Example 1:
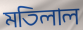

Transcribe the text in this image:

মতিলাল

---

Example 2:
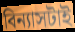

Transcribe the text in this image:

বিন্যাসটাই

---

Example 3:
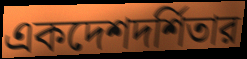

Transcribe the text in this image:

একদেশদর্শিতার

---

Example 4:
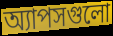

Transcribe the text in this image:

অ্যাপসগুলো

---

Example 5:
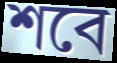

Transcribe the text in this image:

শবে